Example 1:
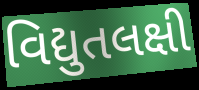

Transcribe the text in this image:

વિદ્યુતલક્ષી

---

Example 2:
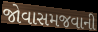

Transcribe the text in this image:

જોવાસમજવાની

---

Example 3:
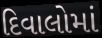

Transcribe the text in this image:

દિવાલોમાં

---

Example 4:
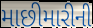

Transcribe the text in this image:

માછીમારીની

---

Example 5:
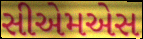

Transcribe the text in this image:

સીએમએસ